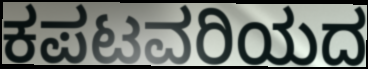
ಕಪಟವರಿಯದ